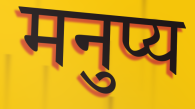
मनुप्य